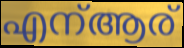
എന്ആര്